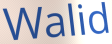
Walid